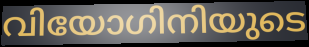
വിയോഗിനിയുടെ